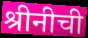
श्रीनीची